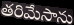
తరిమేసాను